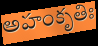
అహంకృతిః